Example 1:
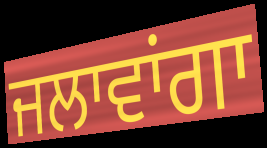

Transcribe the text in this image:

ਜਲਾਵਾਂਗਾ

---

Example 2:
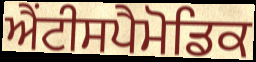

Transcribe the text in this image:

ਐਂਟੀਸਪੈਮੋਡਿਕ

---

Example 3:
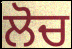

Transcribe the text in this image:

ਲੋਚ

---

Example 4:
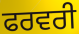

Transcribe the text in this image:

ਫਰਵਰੀ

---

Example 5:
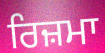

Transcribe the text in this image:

ਰਿਜ਼ਮਾ